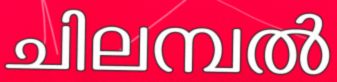
ചിലമ്പൽ